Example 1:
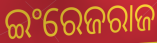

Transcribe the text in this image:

ଇଂରେଜରାଜ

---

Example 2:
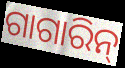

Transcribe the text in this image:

ଗାଗାରିନ୍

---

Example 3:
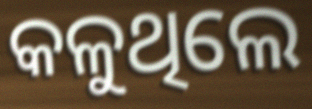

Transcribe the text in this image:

କଳୁଥିଲେ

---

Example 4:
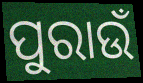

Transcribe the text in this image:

ପୁରାଉଁ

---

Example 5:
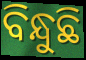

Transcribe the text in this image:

ବିନ୍ଧୁଛି